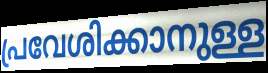
പ്രവേശിക്കാനുള്ള